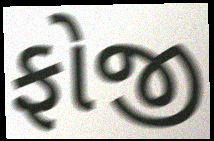
ફોજી